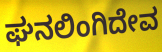
ಘನಲಿಂಗಿದೇವ